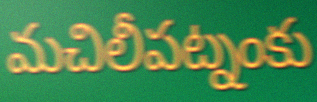
మచిలీపట్నంకు